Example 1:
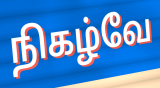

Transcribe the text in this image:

நிகழ்வே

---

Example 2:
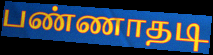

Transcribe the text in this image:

பண்ணாதடி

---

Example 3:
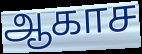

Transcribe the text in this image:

ஆகாச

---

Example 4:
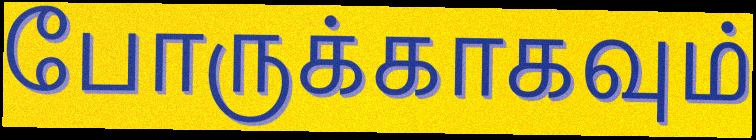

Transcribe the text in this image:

போருக்காகவும்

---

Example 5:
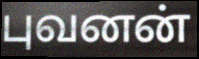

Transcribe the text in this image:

புவனன்